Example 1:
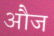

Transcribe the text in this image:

औज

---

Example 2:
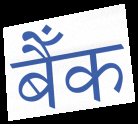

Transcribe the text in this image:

बैँक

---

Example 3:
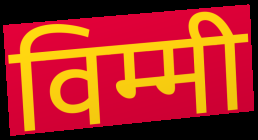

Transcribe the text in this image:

विम्मी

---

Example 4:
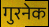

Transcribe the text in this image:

गुरनेक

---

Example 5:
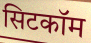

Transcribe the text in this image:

सिटकॉम